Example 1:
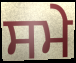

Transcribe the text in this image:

ਸਮੇ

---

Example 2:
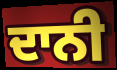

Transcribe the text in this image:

ਦਾਨੀ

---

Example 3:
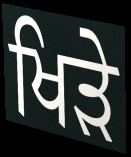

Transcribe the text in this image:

ਖਿੜੇ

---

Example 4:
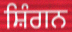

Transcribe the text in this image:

ਸ਼ਿੰਗਨ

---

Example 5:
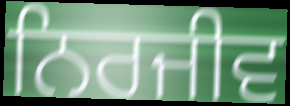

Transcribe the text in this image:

ਨਿਰਜੀਵ